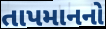
તાપમાનનો